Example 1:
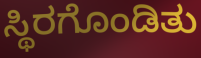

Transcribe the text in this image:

ಸ್ಥಿರಗೊಂಡಿತು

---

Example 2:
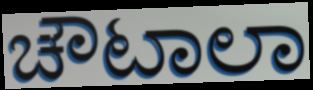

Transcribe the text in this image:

ಚೌಟಾಲಾ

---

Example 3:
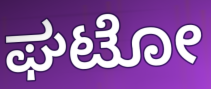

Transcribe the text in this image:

ಘಟೋ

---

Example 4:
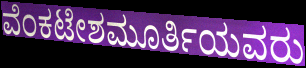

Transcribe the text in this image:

ವೆಂಕಟೇಶಮೂರ್ತಿಯವರು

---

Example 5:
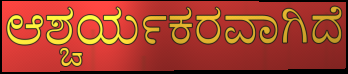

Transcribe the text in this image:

ಆಶ್ಚರ್ಯಕರವಾಗಿದೆ